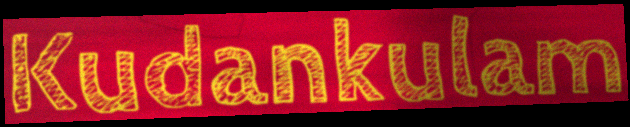
Kudankulam